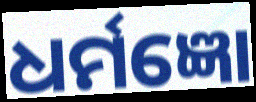
ଧର୍ମଜ୍ଞୋ